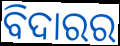
ବିଦାରର